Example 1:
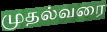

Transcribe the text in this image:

முதல்வரை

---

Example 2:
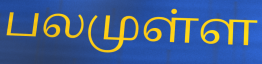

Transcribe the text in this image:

பலமுள்ள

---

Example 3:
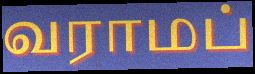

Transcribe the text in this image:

வராமப்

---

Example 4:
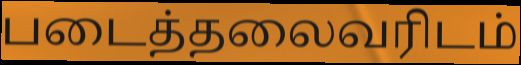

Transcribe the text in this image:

படைத்தலைவரிடம்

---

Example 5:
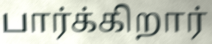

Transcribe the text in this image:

பார்க்கிறார்